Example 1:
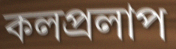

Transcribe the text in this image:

কলপ্রলাপ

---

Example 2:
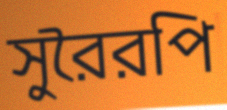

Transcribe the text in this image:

সুরৈরপি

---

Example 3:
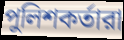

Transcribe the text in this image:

পুলিশকর্তারা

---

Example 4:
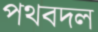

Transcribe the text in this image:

পথবদল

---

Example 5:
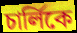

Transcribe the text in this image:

চার্লিকে